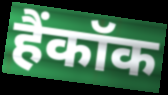
हैंकॉक